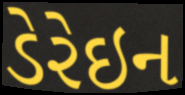
ડેરેઇન